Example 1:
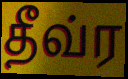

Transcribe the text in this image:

தீவ்ர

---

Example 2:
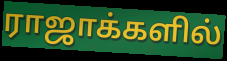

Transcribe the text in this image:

ராஜாக்களில்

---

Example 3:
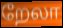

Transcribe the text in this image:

றேலா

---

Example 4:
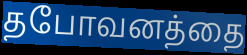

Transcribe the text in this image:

தபோவனத்தை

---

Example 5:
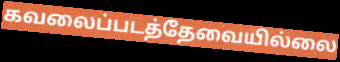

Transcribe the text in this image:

கவலைப்படத்தேவையில்லை